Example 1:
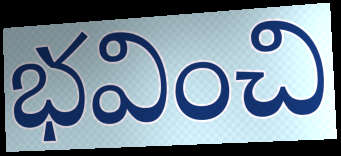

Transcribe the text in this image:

భవించి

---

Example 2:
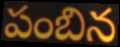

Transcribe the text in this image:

పంబిన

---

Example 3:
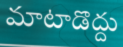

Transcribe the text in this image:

మాటాడొద్దు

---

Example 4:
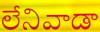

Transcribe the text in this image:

లేనివాడా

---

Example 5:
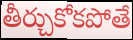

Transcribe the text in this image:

తీర్చుకోకపోతే